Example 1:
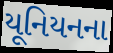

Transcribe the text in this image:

યૂનિયનના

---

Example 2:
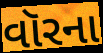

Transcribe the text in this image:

વૉરના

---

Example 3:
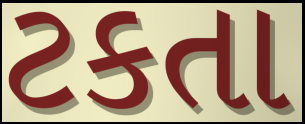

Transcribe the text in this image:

ટકતા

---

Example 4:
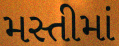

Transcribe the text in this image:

મસ્તીમાં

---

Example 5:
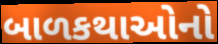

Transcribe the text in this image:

બાળકથાઓનો